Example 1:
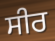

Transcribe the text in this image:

ਸੀਰ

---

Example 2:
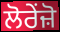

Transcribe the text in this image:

ਲੋਰੇਂਜ਼ੋ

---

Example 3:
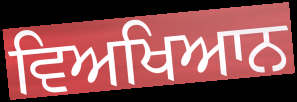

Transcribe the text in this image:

ਵਿਅਖਿਆਨ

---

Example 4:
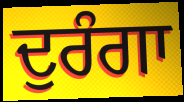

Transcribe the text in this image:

ਦੁਰੰਗਾ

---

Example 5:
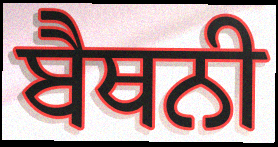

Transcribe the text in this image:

ਬੈਥਨੀ